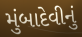
મુંબાદેવીનું